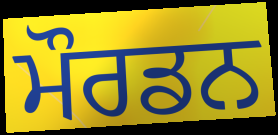
ਮੌਰਡਨ